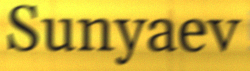
Sunyaev